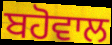
ਬਹੋਵਾਲ